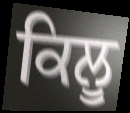
ਕਿਲੂ